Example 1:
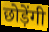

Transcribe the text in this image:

छोड़ेंगी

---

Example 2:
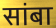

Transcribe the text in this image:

सांबा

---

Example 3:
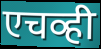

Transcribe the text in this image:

एचव्ही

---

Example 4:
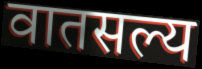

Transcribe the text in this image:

वातसल्य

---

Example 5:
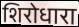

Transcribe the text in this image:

शिरोधारा